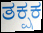
ತಕ್ಷಕ